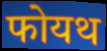
फोयथ